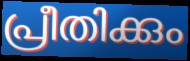
പ്രീതിക്കും